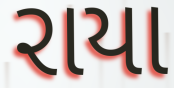
રાયા